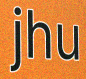
jhu